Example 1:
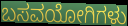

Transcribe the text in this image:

ಬಸವಯೋಗಿಗಳು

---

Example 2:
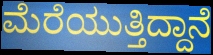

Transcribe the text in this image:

ಮೆರೆಯುತ್ತಿದ್ದಾನೆ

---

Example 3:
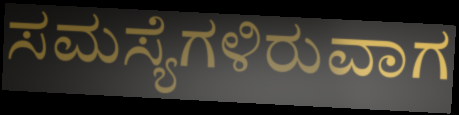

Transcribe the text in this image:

ಸಮಸ್ಯೆಗಳಿರುವಾಗ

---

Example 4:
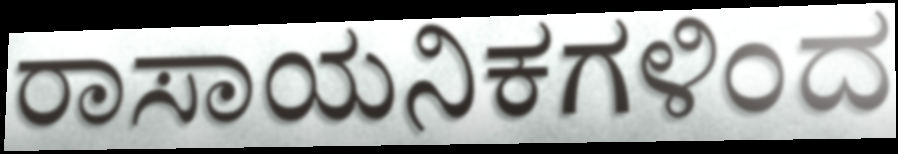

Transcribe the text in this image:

ರಾಸಾಯನಿಕಗಳಿಂದ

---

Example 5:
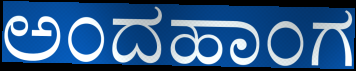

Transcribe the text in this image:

ಅಂದಹಾಂಗ